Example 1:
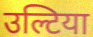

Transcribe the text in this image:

उल्टिया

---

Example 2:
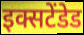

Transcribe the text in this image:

इक्सटेंडेड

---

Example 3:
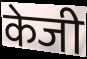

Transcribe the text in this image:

केजी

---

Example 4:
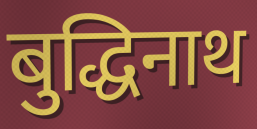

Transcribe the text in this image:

बुद्धिनाथ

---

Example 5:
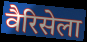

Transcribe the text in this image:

वैरिसेला